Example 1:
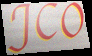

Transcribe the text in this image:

JCO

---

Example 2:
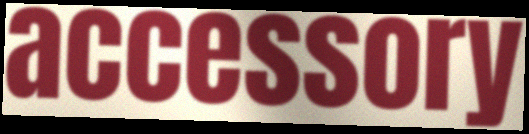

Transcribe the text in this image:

accessory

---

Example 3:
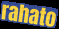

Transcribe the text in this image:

rahato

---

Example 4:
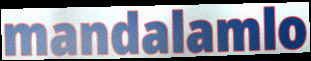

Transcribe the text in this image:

mandalamlo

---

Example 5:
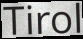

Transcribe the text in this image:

Tirol